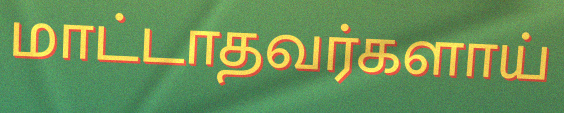
மாட்டாதவர்களாய்